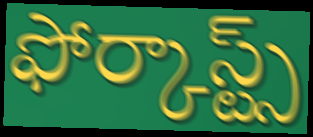
ఫోర్కాస్ట్స్